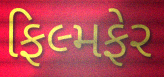
ફિલ્મફેર